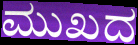
ಮುಖದ